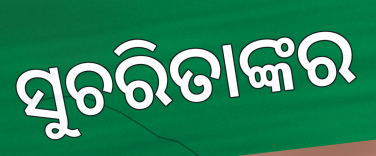
ସୁଚରିତାଙ୍କର